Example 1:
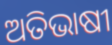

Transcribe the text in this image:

ଅତିଭାଷୀ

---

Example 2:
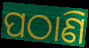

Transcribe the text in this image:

ପଠାଣି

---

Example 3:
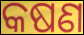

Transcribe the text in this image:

କଷଣ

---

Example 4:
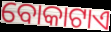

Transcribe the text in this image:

ବୋକାଟାଏ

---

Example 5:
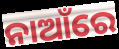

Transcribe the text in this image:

ନାଆଁରେ